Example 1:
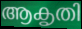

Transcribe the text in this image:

ആകൃതി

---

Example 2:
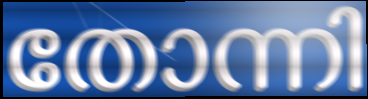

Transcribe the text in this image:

തോന്നി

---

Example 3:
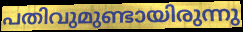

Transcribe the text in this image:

പതിവുമുണ്ടായിരുന്നു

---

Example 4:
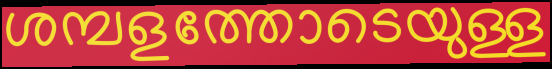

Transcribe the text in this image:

ശമ്പളത്തോടെയുള്ള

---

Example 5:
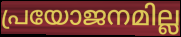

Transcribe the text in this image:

പ്രയോജനമില്ല